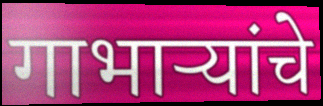
गाभाऱ्यांचे